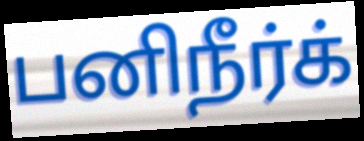
பனிநீர்க்